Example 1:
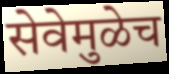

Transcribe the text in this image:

सेवेमुळेच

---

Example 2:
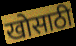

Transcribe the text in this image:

खोसाठी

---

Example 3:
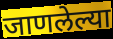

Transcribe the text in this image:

जाणलेल्या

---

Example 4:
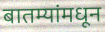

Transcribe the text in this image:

बातम्यांमधून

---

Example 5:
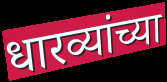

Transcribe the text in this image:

धारव्यांच्या